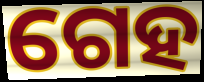
ଗେହ